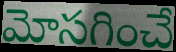
మోసగించే